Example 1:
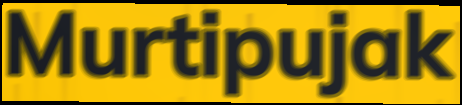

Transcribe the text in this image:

Murtipujak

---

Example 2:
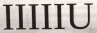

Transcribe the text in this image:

IIIIIU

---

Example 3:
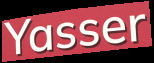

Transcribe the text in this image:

Yasser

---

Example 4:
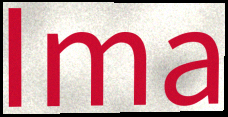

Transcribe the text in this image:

Ima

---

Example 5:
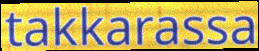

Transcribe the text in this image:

takkarassa